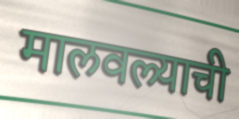
मालवल्याची